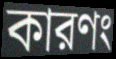
কারণং